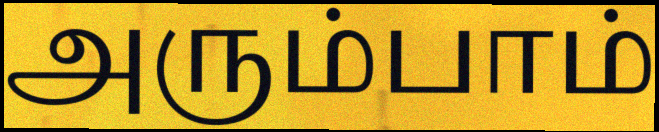
அரும்பாம்